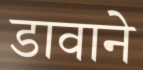
डावाने